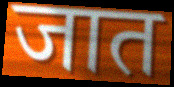
जात